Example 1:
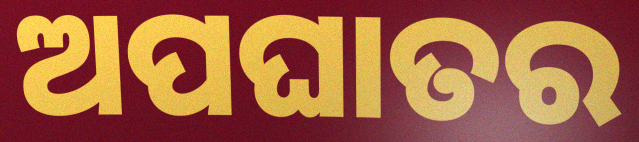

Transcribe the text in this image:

ଅପଘାତର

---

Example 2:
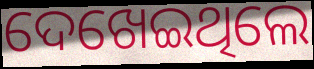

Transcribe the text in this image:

ଦେଖେଇଥିଲେ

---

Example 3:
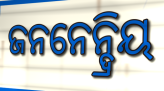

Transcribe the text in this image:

ଜନନେନ୍ଦ୍ରିୟ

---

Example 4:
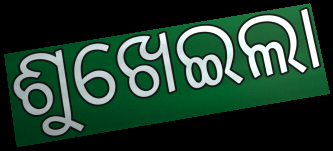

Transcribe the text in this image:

ଶୁଖେଇଲା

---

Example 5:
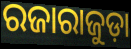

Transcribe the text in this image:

ରଜାରାଜୁଡ଼ା